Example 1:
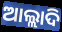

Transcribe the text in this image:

ଆଲ୍ଲାଦି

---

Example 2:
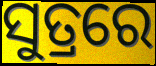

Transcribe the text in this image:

ସୁତ୍ରରେ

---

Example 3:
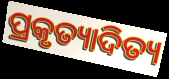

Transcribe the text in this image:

ପ୍ରକୃତ୍ୟାଦିତ୍ୟ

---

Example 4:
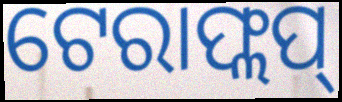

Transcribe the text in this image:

ଟେରାଫ୍ଲପ୍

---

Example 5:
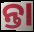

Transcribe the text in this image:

ନ୍ତା